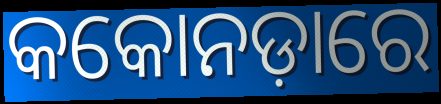
କକୋନଡ଼ାରେ